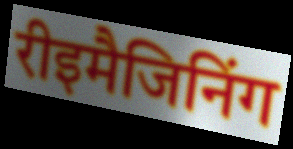
रीइमैजिनिंग